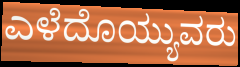
ಎಳೆದೊಯ್ಯುವರು